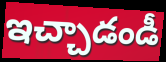
ఇచ్చాడండీ